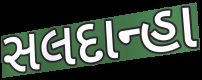
સલદાન્હા